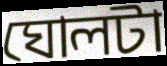
ঘোলটা